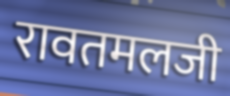
रावतमलजी